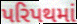
પરિપથમાં